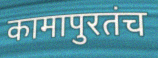
कामापुरतंच